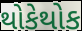
થોકેથોક